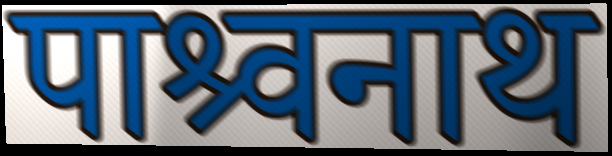
पाश्र्वनाथ